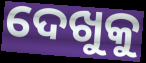
ଦେଖୁକୁ